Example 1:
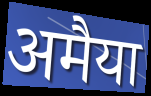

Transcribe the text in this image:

अमैया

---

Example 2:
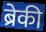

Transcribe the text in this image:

ब्रेकी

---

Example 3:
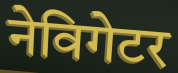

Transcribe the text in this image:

नेविगेटर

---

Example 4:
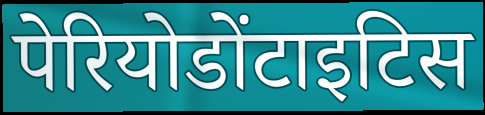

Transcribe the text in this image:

पेरियोडोंटाइटिस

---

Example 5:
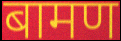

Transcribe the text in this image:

बामण